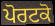
ਪੋਰਟਕੋ